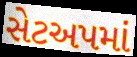
સેટઅપમાં